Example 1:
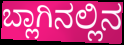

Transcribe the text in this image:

ಬ್ಲಾಗಿನಲ್ಲಿನ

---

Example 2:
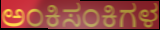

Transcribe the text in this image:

ಅಂಕಿಸಂಕಿಗಳ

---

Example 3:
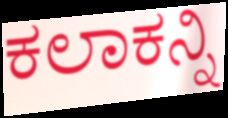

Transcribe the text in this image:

ಕಲಾಕನ್ನಿ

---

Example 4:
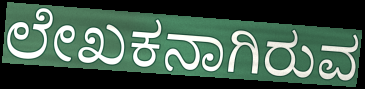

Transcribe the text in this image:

ಲೇಖಕನಾಗಿರುವ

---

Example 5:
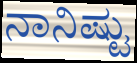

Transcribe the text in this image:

ನಾನಿಷ್ಟು